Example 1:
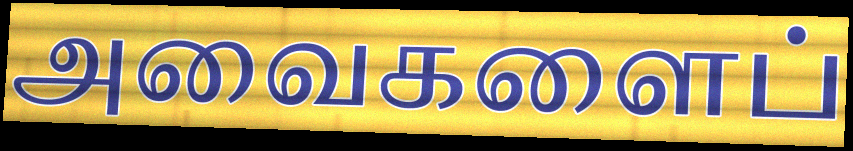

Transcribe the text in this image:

அவைகளைப்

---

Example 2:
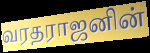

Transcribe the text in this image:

வரதராஜனின்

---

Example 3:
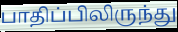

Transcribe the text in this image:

பாதிப்பிலிருந்து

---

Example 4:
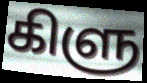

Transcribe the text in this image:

கிளு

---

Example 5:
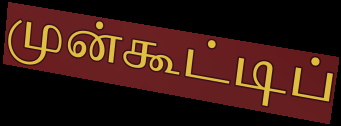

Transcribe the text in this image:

முன்கூட்டிப்